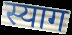
स्याग